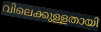
വിലെക്കുള്ളതായി